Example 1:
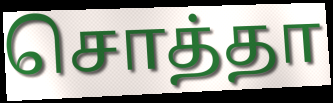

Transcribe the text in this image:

சொத்தா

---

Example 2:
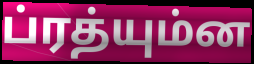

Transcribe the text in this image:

ப்ரத்யும்ன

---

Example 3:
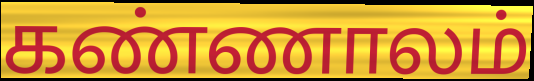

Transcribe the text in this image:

கண்ணாலம்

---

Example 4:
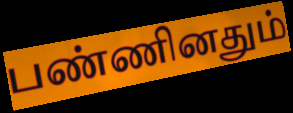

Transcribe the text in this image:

பண்ணினதும்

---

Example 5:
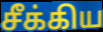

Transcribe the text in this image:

சீக்கிய